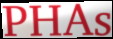
PHAs